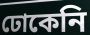
ঢোকেনি